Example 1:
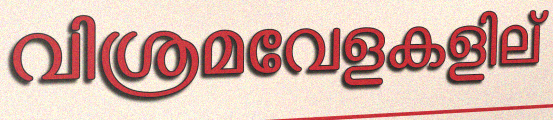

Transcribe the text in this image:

വിശ്രമവേളകളില്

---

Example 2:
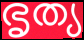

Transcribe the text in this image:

ഭൃത്യ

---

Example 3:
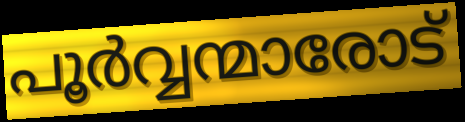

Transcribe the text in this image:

പൂർവ്വന്മാരോട്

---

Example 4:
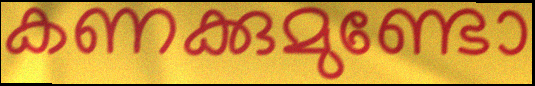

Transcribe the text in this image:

കണക്കുമുണ്ടോ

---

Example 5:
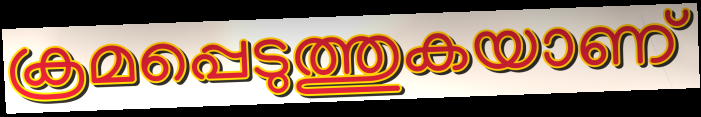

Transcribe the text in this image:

ക്രമപ്പെടുത്തുകയാണ്